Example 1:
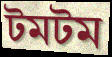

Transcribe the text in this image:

টমটম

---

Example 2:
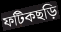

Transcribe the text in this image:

ফটিকছড়ি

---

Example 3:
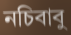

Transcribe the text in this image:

নচিবাবু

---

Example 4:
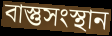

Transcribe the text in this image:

বাস্তুসংস্থান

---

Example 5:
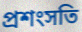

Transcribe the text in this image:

প্রশংসতি